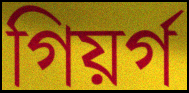
গিয়ৰ্গ